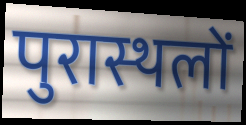
पुरास्थलों